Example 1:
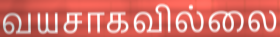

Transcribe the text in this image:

வயசாகவில்லை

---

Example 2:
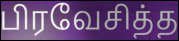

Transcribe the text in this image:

பிரவேசித்த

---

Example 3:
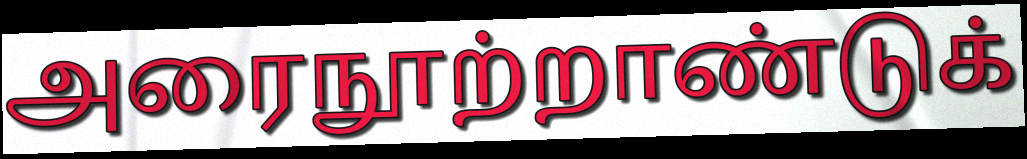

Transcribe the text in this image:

அரைநூற்றாண்டுக்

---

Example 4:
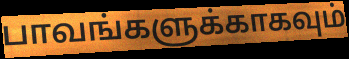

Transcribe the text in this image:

பாவங்களுக்காகவும்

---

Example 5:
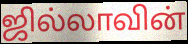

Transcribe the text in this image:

ஜில்லாவின்